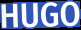
HUGO